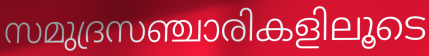
സമുദ്രസഞ്ചാരികളിലൂടെ